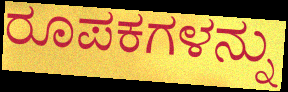
ರೂಪಕಗಳನ್ನು